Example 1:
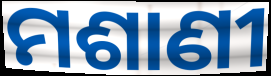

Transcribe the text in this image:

ମଶାଣୀ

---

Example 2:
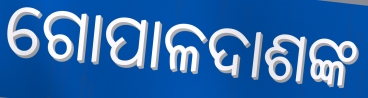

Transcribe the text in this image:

ଗୋପାଳଦାଶଙ୍କ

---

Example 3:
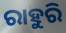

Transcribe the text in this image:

ରାହୁରି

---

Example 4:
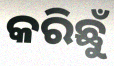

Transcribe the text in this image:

କରିଛୁଁ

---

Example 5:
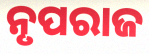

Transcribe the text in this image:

ନୃପରାଜ